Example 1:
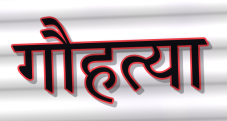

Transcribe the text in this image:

गौहत्या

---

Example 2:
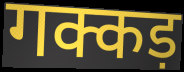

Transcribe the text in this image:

गक्कड़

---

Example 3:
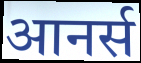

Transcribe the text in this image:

आनर्स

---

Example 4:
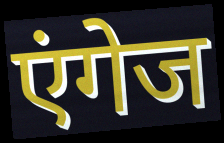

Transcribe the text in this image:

एंगेज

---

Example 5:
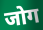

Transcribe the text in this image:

जोग